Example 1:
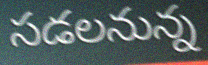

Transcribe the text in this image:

సడలనున్న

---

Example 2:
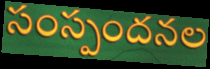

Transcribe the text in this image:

సంస్పందనల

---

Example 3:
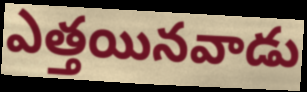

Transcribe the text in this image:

ఎత్తయినవాడు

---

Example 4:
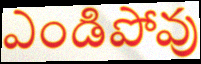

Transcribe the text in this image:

ఎండిపోవు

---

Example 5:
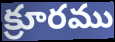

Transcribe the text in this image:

క్రూరము